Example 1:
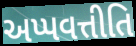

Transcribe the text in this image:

અપ્પવત્તીતિ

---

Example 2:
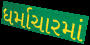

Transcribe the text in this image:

ધર્માચારમાં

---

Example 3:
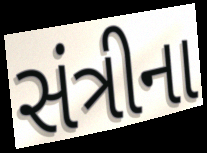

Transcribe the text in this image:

સંત્રીના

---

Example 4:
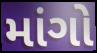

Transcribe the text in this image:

માંગો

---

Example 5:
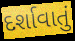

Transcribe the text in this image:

દર્શાવાતું